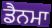
ਡੈਨਮਾ